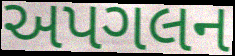
અપગલન